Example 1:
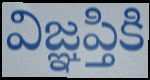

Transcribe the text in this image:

విజ్ఞప్తికి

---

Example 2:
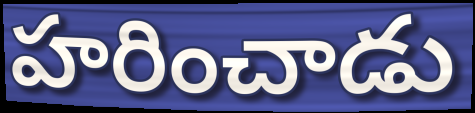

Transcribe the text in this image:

హరించాడు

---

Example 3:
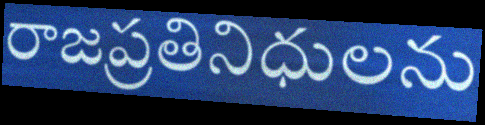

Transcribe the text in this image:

రాజప్రతినిధులను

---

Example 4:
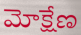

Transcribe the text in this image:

మోక్షేణ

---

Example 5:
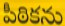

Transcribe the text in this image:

పీఠికను